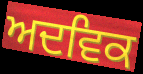
ਅਦਵਿਕ